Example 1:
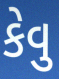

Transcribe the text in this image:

કેવુ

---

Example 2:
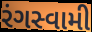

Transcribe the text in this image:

રંગસ્વામી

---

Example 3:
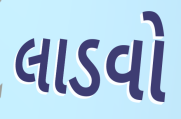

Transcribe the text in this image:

લાડવો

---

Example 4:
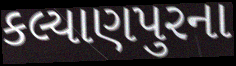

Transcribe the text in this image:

કલ્યાણપુરના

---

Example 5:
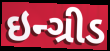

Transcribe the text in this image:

ઇન્ગ્રીડ